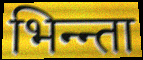
भिन्न्ता